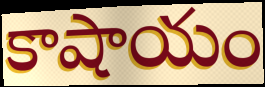
కాషాయం